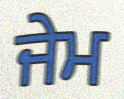
ਜੇਮ